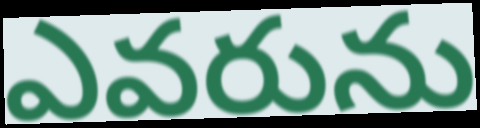
ఎవరును